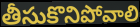
తీసుకొనిపోవాలి